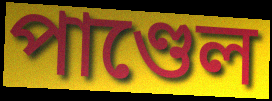
পাণ্ডেল